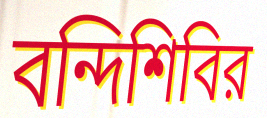
বন্দিশিবির